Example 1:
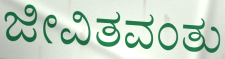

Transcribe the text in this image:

ಜೀವಿತವಂತು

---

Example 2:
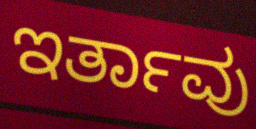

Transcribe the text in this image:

ಇರ್ತಾವು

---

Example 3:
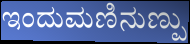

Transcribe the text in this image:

ಇಂದುಮಣಿನುಣ್ಪು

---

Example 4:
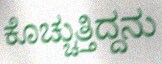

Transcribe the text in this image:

ಕೊಚ್ಚುತ್ತಿದ್ದನು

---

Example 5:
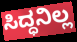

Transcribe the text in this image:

ಸಿದ್ಧನಿಲ್ಲ